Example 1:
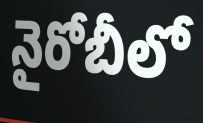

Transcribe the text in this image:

నైరోబీలో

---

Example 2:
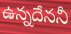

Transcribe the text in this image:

ఉన్నదేననీ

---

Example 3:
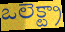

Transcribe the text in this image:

ఒలెక్ట్రా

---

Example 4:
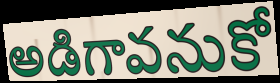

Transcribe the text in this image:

అడిగావనుకో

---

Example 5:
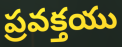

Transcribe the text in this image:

ప్రవక్తయు